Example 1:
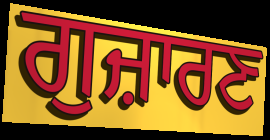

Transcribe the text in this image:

ਗੁਜ਼ਾਰਣ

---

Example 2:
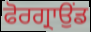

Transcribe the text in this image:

ਫੋਰਗ੍ਰਾਉਂਡ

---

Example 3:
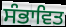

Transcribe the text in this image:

ਸੰਭਾਵਿਤ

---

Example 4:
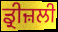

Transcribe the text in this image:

ਡ੍ਰੀਜ਼ਲੀ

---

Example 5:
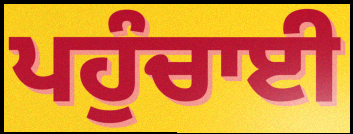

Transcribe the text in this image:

ਪਹੁੰਚਾਈ